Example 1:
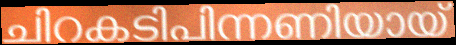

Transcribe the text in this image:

ചിറകടിപിന്നണിയായ്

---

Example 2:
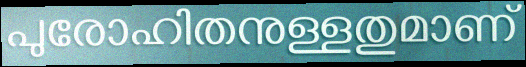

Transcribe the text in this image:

പുരോഹിതനുള്ളതുമാണ്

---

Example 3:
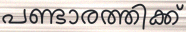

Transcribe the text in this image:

പണ്ടാരത്തിക്ക്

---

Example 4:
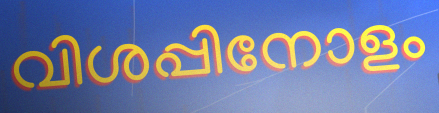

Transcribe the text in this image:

വിശപ്പിനോളം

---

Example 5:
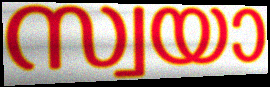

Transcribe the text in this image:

സ്വയാ